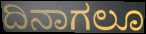
ದಿನಾಗಲೂ